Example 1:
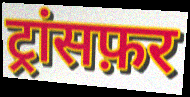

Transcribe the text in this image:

ट्रांसफ़र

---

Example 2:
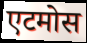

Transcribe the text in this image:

एटमोस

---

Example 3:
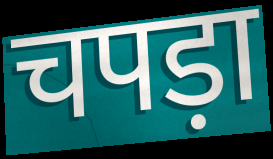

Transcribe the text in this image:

चपड़ा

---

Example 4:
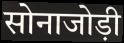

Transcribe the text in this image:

सोनाजोड़ी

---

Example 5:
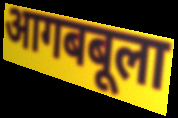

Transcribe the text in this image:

आगबबूला